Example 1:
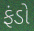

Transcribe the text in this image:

ફંડો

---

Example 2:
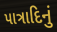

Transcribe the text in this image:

પાત્રાદિનું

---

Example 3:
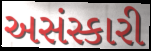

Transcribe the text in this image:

અસંસ્કારી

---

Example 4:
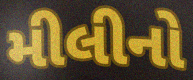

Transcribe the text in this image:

મીલીનો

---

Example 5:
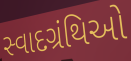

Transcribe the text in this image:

સ્વાદગ્રંથિઓ